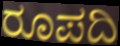
ರೂಪದಿ